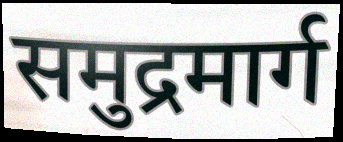
समुद्रमार्ग